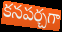
కనపర్చగా